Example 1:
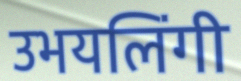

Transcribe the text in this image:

उभयलिंगी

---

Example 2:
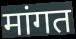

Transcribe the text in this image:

मांगत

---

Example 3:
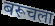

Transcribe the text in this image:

बरूचला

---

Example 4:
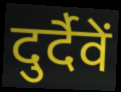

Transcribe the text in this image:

दुर्दैवें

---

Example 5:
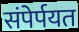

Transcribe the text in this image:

संपेर्पयत